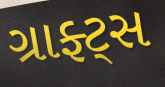
ગ્રાફ્ટ્સ